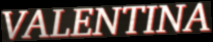
VALENTINA